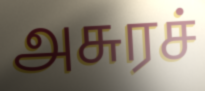
அசுரச்